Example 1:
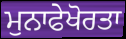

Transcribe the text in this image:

ਮੁਨਾਫੇਖੋਰਤਾ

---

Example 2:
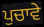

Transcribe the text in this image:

ਪੁਚਾਵੇ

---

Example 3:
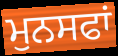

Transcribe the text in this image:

ਮੁਨਸਫਾਂ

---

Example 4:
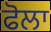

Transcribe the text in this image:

ਫੋਲਾ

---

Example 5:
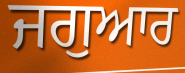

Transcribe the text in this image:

ਜਗੁਆਰ